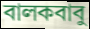
বালকবাবু